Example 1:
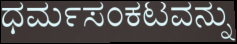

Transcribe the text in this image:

ಧರ್ಮಸಂಕಟವನ್ನು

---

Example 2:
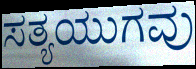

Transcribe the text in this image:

ಸತ್ಯಯುಗವು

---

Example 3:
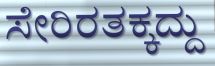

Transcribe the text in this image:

ಸೇರಿರತಕ್ಕದ್ದು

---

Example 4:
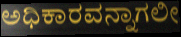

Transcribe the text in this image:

ಅಧಿಕಾರವನ್ನಾಗಲೀ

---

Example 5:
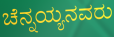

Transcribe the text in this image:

ಚೆನ್ನಯ್ಯನವರು